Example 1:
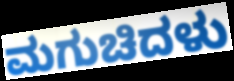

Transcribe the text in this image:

ಮಗುಚಿದಳು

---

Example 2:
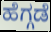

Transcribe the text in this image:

ಹೆಗ್ಗಡೆ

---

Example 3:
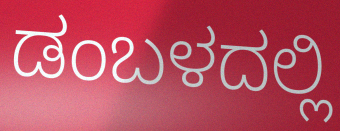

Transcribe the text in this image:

ಡಂಬಳದಲ್ಲಿ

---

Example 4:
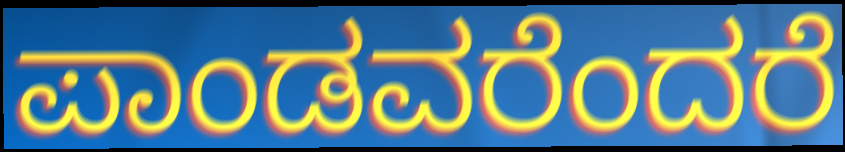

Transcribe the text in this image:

ಪಾಂಡವರೆಂದರೆ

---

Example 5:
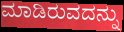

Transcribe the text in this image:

ಮಾಡಿರುವದನ್ನು